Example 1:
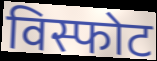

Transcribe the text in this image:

विस्फोट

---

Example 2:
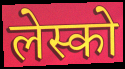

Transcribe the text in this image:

लेस्को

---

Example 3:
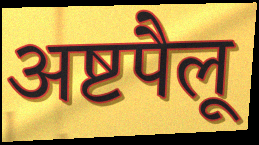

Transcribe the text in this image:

अष्टपैलू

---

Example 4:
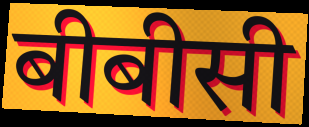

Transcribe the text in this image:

बीबीसी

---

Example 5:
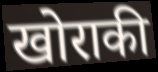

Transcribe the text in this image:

खोराकी